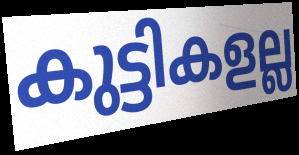
കുട്ടികളല്ല